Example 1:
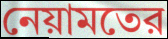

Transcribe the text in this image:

নেয়ামতের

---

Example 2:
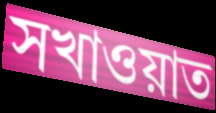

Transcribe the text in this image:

সখাওয়াত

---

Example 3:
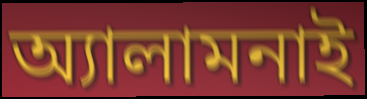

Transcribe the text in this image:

অ্যালামনাই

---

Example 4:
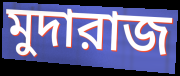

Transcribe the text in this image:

মুদারাজ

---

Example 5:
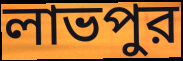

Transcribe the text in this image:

লাভপুর